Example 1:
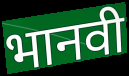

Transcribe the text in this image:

भानवी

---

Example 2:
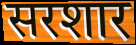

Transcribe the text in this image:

सरशार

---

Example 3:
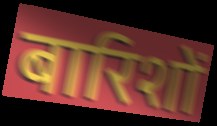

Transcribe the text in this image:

बारिशों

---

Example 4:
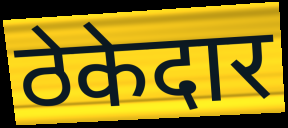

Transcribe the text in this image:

ठेकेदार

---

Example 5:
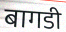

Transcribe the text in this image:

बागडी